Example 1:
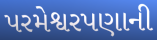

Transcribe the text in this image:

પરમેશ્વરપણાની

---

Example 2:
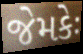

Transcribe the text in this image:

જેમકેઃ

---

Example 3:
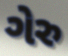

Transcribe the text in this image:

ગેરુ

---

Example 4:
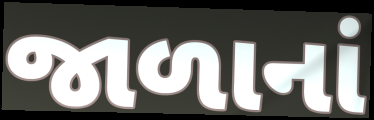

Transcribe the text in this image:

જાળાનાં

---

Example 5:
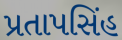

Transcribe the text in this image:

પ્રતાપસિંહ